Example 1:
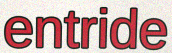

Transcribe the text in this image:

entride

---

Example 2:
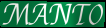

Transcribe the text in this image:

MANTO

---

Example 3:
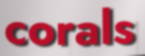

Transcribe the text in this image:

corals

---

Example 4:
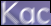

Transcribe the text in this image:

Kac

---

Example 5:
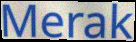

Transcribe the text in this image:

Merak